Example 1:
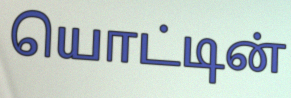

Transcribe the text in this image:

யொட்டின்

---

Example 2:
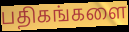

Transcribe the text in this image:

பதிகங்களை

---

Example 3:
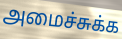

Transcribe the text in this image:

அமைச்சுக்க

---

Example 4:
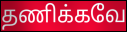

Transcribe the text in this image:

தணிக்கவே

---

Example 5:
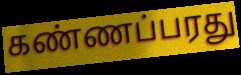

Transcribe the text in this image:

கண்ணப்பரது